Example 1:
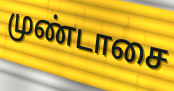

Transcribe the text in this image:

முண்டாசை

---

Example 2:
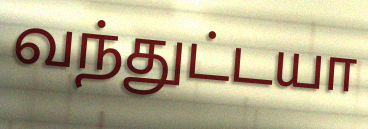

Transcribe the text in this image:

வந்துட்டயா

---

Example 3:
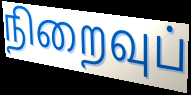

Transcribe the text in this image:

நிறைவுப்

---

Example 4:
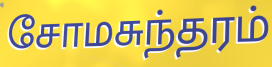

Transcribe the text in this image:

சோமசுந்தரம்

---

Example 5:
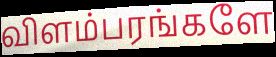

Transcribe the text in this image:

விளம்பரங்களே